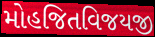
મોહજિતવિજયજી